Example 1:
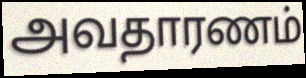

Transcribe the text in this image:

அவதாரணம்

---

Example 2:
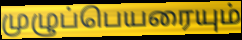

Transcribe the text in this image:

முழுப்பெயரையும்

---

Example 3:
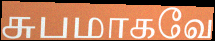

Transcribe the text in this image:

சுபமாகவே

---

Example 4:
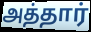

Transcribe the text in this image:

அத்தார்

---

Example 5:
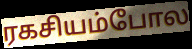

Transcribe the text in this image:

ரகசியம்போல